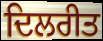
ਦਿਲਰੀਤ